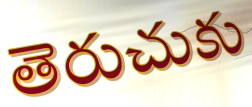
తెరుచుకు